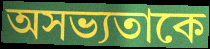
অসভ্যতাকে